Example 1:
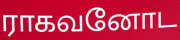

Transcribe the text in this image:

ராகவனோட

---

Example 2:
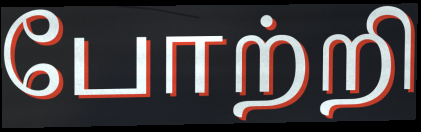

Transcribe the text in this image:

போற்றி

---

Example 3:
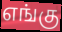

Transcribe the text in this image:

எங்கு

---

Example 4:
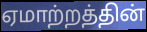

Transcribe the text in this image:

ஏமாற்றத்தின்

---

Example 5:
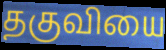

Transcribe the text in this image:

தகுவியை